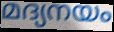
മദ്യനയം